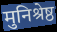
मुनिश्रेष्ठ